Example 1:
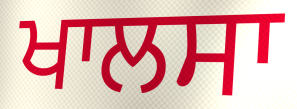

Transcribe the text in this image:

ਖਾਲਸਾ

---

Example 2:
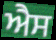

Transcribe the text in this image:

ਐਸ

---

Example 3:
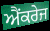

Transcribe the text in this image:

ਐਂਕਰੇਜ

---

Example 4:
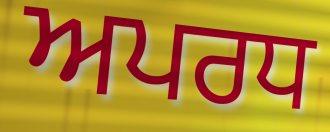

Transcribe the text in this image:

ਅਪਰਧ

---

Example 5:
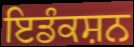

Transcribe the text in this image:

ਇਡੰਕਸ਼ਨ